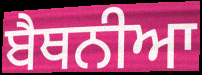
ਬੈਥਨੀਆ